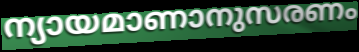
ന്യായമാണാനുസരണം